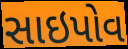
સાઇપોવ